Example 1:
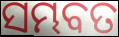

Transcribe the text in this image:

ସମ୍ଭବତ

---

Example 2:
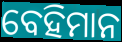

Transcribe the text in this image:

ବେହିମାନ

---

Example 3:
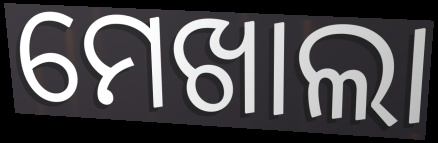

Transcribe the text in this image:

ମେଖାଲା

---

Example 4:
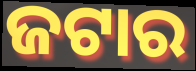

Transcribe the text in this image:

ଜଟାର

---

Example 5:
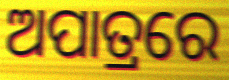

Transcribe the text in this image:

ଅପାତ୍ରରେ